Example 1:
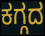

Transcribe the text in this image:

ಕಗ್ಗದ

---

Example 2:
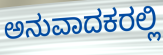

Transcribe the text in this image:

ಅನುವಾದಕರಲ್ಲಿ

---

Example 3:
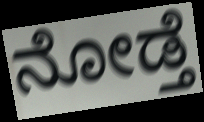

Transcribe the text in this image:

ನೋಡ್ತೆ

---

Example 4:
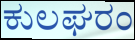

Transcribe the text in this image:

ಕುಲಘರಂ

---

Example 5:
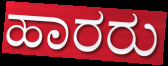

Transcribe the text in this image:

ಹಾರರು